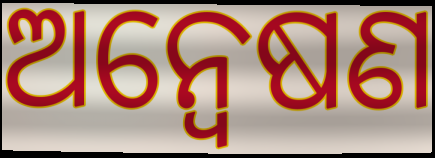
ଅନ୍ବେଷଣ